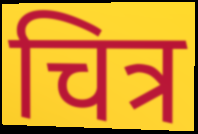
चित्र